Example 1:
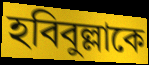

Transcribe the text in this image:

হবিবুল্লাকে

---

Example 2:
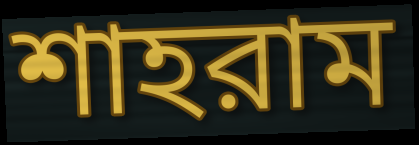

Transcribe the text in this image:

শাহরাম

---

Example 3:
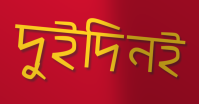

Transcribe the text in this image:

দুইদিনই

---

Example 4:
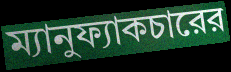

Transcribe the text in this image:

ম্যানুফ্যাকচারের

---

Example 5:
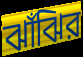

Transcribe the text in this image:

ঝাঁঝির